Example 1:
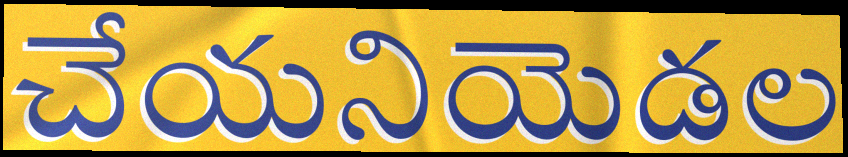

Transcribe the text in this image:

చేయనియెడల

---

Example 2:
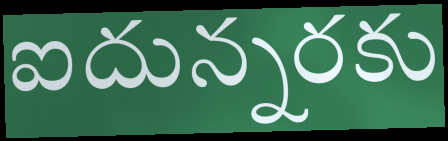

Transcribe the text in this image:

ఐదున్నరకు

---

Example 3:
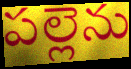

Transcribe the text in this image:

పల్లెను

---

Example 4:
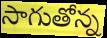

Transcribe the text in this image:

సాగుతోన్న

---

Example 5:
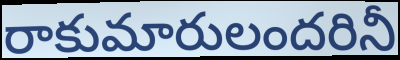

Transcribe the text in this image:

రాకుమారులందరినీ